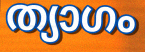
ത്യാഗം